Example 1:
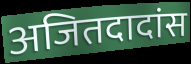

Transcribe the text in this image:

अजितदादांस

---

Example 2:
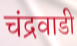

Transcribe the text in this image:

चंद्रवाडी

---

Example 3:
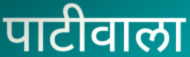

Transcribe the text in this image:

पाटीवाला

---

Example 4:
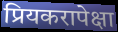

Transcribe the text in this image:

प्रियकरापेक्षा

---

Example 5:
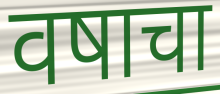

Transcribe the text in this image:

वषाचा